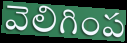
వెలిగింప